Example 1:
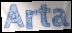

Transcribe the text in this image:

Arta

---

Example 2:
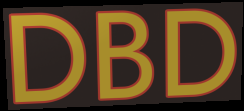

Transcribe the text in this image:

DBD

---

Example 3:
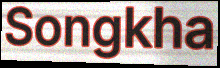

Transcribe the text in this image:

Songkha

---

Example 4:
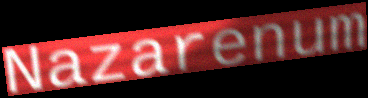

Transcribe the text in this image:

Nazarenum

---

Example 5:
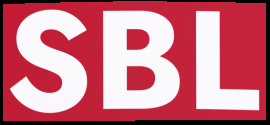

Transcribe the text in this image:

SBL